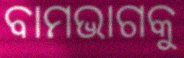
ବାମଭାଗକୁ